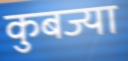
कुबज्या